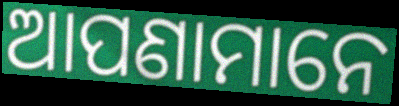
ଆପଣାମାନେ